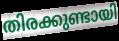
തിരക്കുണ്ടായി